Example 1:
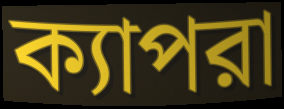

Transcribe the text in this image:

ক্যাপরা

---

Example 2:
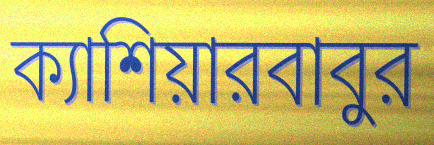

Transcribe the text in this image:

ক্যাশিয়ারবাবুর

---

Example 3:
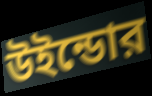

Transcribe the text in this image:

উইন্ডোর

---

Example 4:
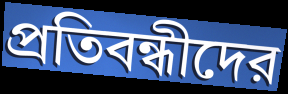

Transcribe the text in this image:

প্রতিবন্ধীদের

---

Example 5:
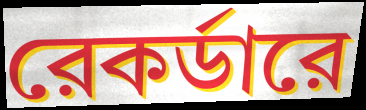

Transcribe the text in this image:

রেকর্ডারে